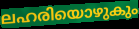
ലഹരിയൊഴുകും